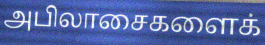
அபிலாசைகளைக்